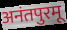
अनंतपुरमू